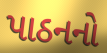
પાઠનનો